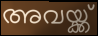
അവയ്ക്ക്